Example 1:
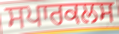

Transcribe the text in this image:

ਸਪਾਰਕਲਸ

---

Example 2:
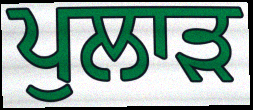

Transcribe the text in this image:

ਪੁਲਾੜ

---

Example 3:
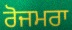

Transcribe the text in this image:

ਰੋਜਮਰਾ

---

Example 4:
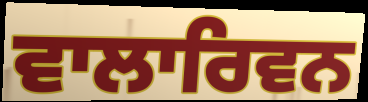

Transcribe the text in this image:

ਵਾਲਾਰਿਵਨ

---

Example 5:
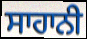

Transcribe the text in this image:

ਸਾਹਾਨੀ